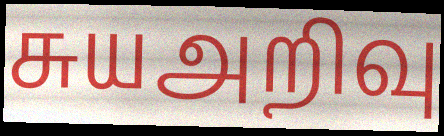
சுயஅறிவு